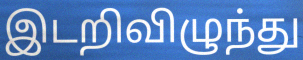
இடறிவிழுந்து